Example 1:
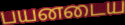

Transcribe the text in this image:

பயனடைய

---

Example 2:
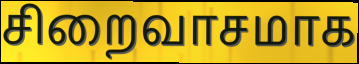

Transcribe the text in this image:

சிறைவாசமாக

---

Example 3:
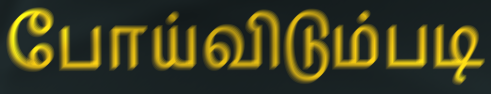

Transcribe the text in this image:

போய்விடும்படி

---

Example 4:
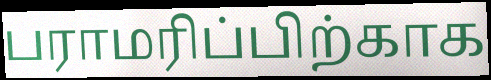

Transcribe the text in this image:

பராமரிப்பிற்காக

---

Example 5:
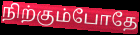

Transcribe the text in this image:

நிற்கும்போதே